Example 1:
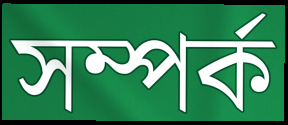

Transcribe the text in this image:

সম্পর্ক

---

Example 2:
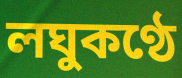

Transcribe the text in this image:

লঘুকণ্ঠে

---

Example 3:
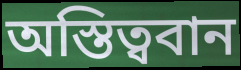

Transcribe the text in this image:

অস্তিত্ববান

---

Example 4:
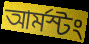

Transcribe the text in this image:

আর্মস্টং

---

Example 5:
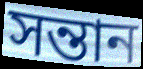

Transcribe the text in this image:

সন্তান